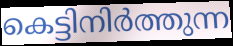
കെട്ടിനിർത്തുന്ന